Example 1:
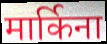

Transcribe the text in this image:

मार्किना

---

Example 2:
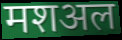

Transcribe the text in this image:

मशअल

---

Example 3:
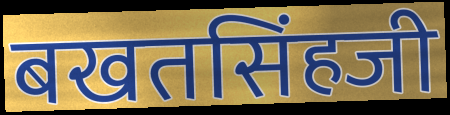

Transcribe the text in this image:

बखतसिंहजी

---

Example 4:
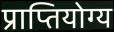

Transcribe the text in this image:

प्राप्तियोग्य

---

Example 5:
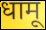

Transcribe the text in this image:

धामू